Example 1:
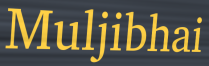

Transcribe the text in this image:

Muljibhai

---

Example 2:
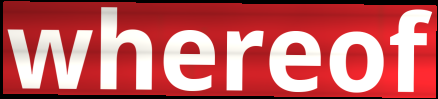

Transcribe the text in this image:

whereof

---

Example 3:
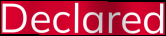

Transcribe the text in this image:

Declared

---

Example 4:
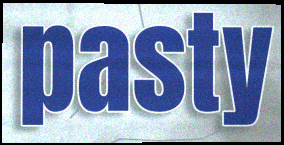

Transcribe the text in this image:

pasty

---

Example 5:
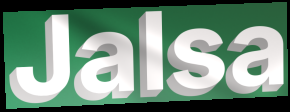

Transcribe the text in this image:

Jalsa